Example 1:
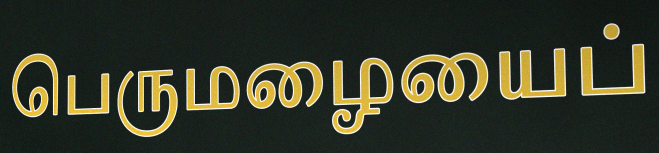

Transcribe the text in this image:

பெருமழையைப்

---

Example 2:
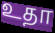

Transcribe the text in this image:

உதா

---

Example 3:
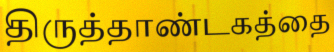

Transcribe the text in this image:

திருத்தாண்டகத்தை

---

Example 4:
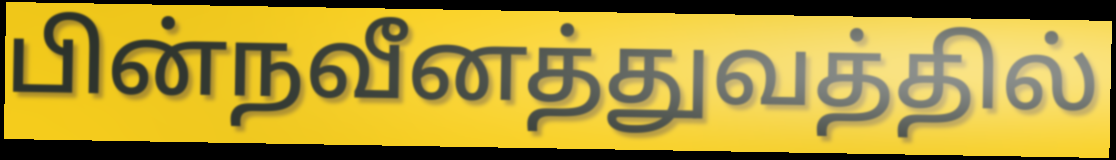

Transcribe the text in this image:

பின்நவீனத்துவத்தில்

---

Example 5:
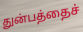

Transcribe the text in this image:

துன்பத்தைச்